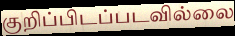
குறிப்பிடப்படவில்லை